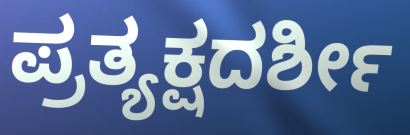
ಪ್ರತ್ಯಕ್ಷದರ್ಶೀ